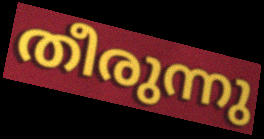
തീരുന്നു